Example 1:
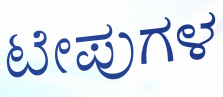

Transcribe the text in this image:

ಟೇಪುಗಳ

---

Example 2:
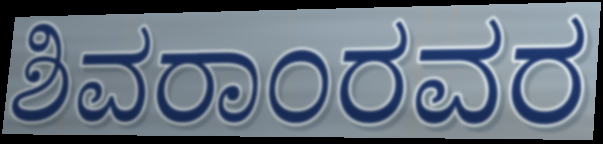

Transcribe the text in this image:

ಶಿವರಾಂರವರ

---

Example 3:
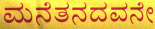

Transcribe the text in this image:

ಮನೆತನದವನೇ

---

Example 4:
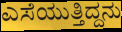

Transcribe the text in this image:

ಎಸೆಯುತ್ತಿದ್ದನು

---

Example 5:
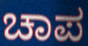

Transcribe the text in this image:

ಚಾಪ